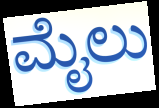
ಮೈಲು